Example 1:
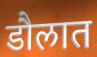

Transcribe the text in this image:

डौलात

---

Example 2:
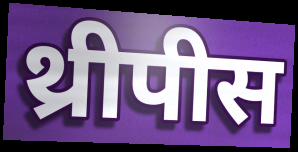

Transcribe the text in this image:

थ्रीपीस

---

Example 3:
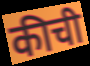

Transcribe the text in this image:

कीची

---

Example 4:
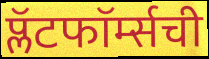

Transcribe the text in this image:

प्लॅटफॉर्म्सची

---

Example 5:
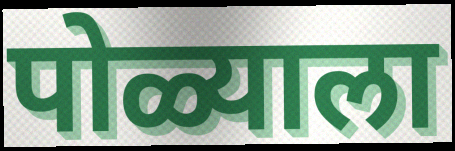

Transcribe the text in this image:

पोळ्याला